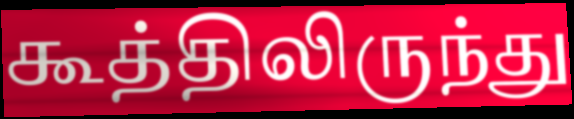
கூத்திலிருந்து